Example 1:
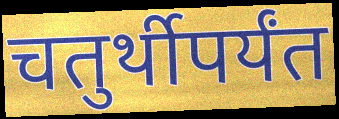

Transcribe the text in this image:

चतुर्थीपर्यंत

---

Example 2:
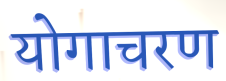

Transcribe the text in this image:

योगाचरण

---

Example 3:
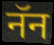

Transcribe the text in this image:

नॅन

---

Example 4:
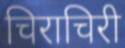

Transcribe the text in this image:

चिराचिरी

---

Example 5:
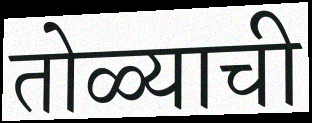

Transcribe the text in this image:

तोळ्याची